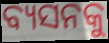
ବ୍ୟସନକୁ